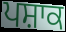
ਪਸ਼ਾਕ